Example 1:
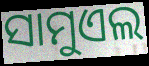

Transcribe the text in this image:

ସାମୁଏଲ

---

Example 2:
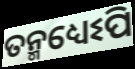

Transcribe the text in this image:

ତନ୍ମଧ୍ୟେଽପି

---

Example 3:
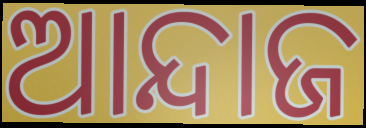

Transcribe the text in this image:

ଆନ୍ଦାଜ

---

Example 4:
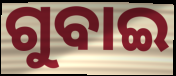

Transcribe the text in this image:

ଗୁବାଇ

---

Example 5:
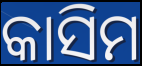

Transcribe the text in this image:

କାସିମ